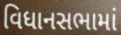
વિધાનસભામાં